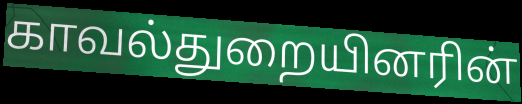
காவல்துறையினரின்